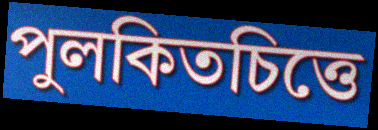
পুলকিতচিত্তে